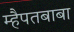
म्हैपतबाबा